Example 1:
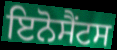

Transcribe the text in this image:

ਇਨੋਸੈਂਟਸ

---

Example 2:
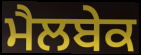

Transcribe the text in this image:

ਮੈਲਬੇਕ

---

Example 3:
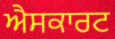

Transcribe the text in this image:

ਐਸਕਾਰਟ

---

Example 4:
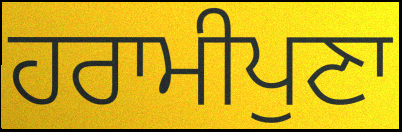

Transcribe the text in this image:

ਹਰਾਮੀਪੁਣਾ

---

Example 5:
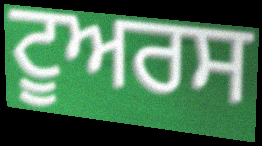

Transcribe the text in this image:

ਟੂਅਰਸ